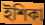
ইশিকা